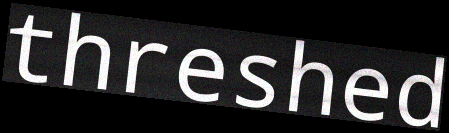
threshed